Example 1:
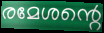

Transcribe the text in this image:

രമേശന്റെ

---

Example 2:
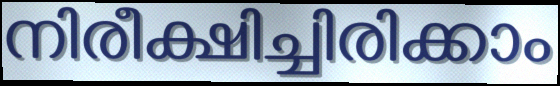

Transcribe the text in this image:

നിരീക്ഷിച്ചിരിക്കാം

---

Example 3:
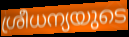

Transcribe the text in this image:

ശ്രീധന്യയുടെ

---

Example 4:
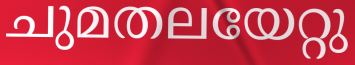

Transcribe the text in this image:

ചുമതലയേറ്റു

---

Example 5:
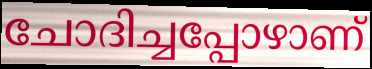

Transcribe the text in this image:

ചോദിച്ചപ്പോഴാണ്